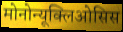
मोनोन्यूक्लिओसिस